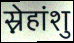
स्नेहांशु